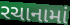
રચાનામાં